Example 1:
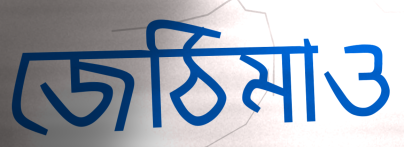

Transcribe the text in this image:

জেঠিমাও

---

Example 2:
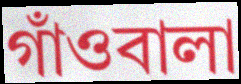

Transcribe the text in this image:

গাঁওবালা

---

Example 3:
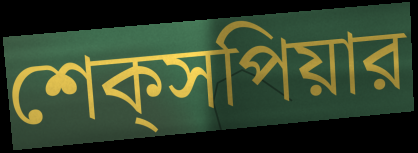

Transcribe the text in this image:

শেক্‌সপিয়ার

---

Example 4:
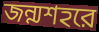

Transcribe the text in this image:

জন্মশহরে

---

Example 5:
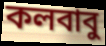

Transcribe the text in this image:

কলবাবু